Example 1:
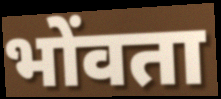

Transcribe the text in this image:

भोंवता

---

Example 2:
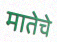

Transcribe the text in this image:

मातेचे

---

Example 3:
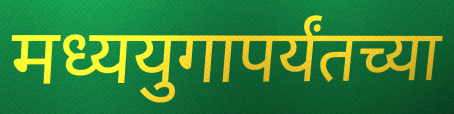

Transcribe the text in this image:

मध्ययुगापर्यंतच्या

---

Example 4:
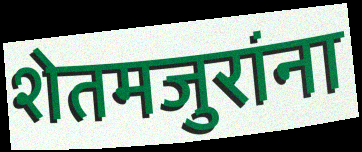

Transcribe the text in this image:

शेतमजुरांना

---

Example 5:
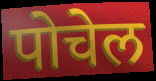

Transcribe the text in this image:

पोचेल